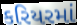
કરિયરમાં